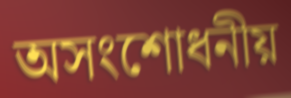
অসংশোধনীয়